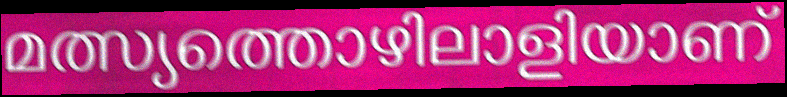
മത്സ്യത്തൊഴിലാളിയാണ്